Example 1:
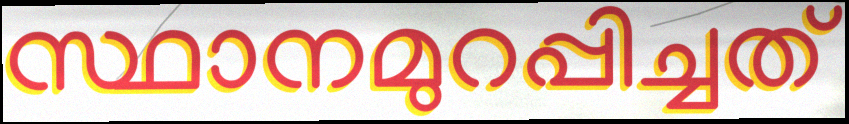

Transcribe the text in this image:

സ്ഥാനമുറപ്പിച്ചത്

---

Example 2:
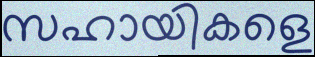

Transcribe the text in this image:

സഹായികളെ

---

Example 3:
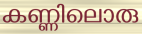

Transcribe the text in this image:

കണ്ണിലൊരു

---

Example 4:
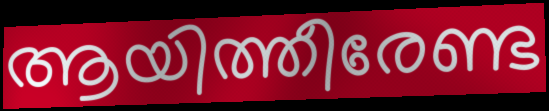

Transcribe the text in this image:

ആയിത്തീരേണ്ട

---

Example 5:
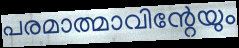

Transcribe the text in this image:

പരമാത്മാവിന്റേയും